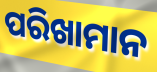
ପରିଖାମାନ